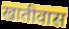
खातीवास